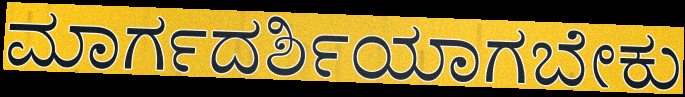
ಮಾರ್ಗದರ್ಶಿಯಾಗಬೇಕು